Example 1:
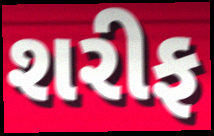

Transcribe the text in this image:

શરીફ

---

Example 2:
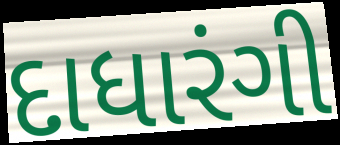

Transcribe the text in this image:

દાધારંગી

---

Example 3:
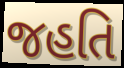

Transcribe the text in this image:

જહતિ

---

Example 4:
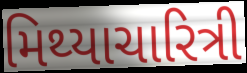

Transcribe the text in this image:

મિથ્યાચારિત્રી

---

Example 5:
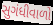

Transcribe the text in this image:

સુગંધીવાળો